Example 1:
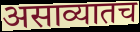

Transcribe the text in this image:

असाव्यातच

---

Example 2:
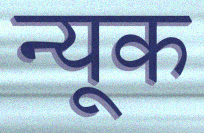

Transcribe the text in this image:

न्यूक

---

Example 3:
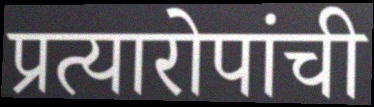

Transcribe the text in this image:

प्रत्यारोपांची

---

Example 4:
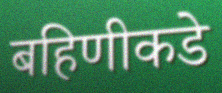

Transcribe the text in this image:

बहिणीकडे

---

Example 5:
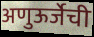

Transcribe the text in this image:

अणुऊर्जेची